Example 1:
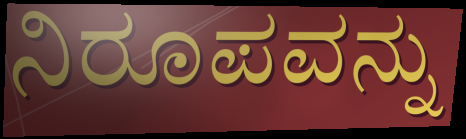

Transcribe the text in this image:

ನಿರೂಪವನ್ನು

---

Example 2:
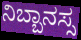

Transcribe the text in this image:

ನಿಬ್ಬಾನಸ್ಸ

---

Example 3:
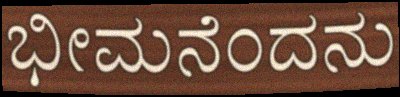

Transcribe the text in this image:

ಭೀಮನೆಂದನು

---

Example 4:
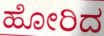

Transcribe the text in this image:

ಹೋರಿದ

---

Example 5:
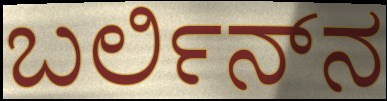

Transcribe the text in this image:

ಬರ್ಲಿನ್‍ನ